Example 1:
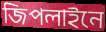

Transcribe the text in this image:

জিপলাইনে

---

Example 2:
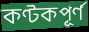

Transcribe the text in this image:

কণ্টকপূর্ণ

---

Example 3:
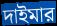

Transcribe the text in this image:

দাইমার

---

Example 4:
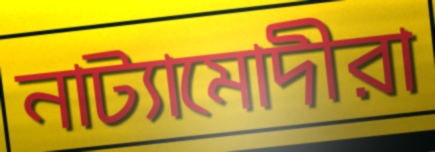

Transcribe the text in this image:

নাট্যামোদীরা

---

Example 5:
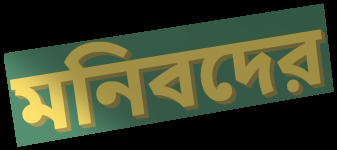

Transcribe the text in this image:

মনিবদের